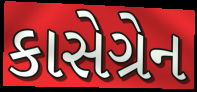
કાસેગ્રેન